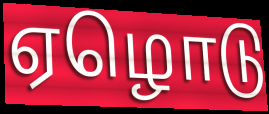
ஏழொடு